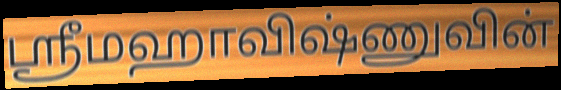
ஸ்ரீமஹாவிஷ்ணுவின்